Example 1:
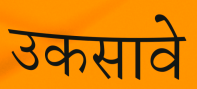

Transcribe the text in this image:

उकसावे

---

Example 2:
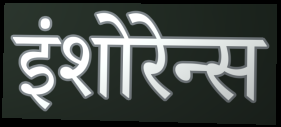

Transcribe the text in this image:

इंशोरेन्स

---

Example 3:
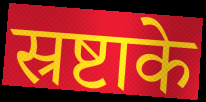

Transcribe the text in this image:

स्रष्टाके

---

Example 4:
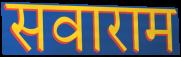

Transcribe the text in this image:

सवाराम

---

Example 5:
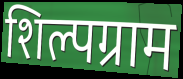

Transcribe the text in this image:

शिल्पग्राम